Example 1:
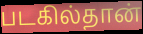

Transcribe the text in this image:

படகில்தான்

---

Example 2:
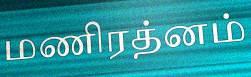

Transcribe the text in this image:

மணிரத்னம்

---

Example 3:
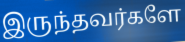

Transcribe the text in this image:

இருந்தவர்களே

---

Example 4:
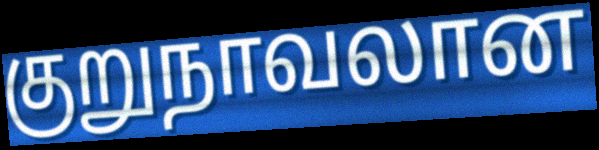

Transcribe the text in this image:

குறுநாவலான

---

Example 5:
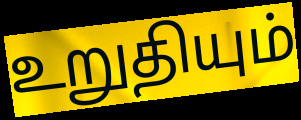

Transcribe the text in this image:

உறுதியும்